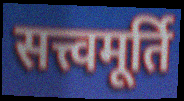
सत्त्वमूर्ति